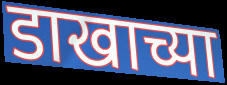
डाखाच्या